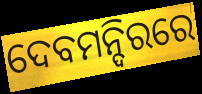
ଦେବମନ୍ଦିରରେ